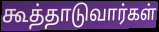
கூத்தாடுவார்கள்